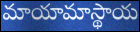
మాయామాస్థాయ